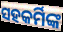
ସହକର୍ମିଙ୍କ